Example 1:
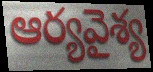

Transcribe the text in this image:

ఆర్యవైశ్య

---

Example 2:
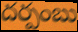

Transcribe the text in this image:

దర్పంబు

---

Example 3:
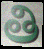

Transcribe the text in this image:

తి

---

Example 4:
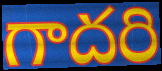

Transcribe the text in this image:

గాదరి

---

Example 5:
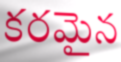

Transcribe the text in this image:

కరమైన